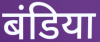
बंडिया